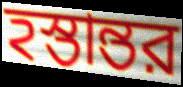
হস্তান্তর